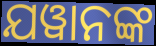
ଯୱାନଙ୍କ